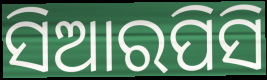
ସିଆରପିସି